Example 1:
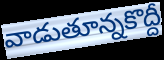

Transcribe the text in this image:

వాడుతూన్నకొద్దీ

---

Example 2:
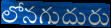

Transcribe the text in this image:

లోనగుదురు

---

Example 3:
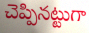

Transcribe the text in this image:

చెప్పినట్టుగా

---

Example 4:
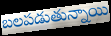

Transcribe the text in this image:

బలపడుతున్నాయి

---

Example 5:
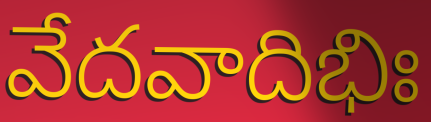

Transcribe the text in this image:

వేదవాదిభిః